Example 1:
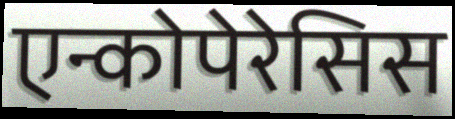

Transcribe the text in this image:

एन्कोपेरेसिस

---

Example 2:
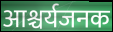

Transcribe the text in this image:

आश्चर्यजनक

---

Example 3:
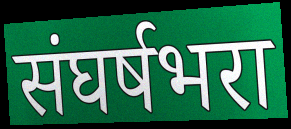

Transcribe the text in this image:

संघर्षभरा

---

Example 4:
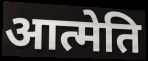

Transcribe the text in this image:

आत्मेति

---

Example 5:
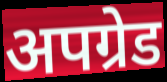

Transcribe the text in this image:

अपग्रेड